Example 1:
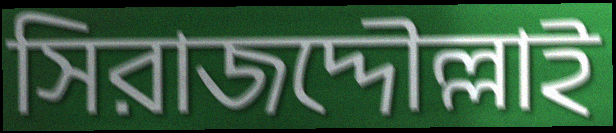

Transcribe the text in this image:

সিরাজদ্দৌল্লাই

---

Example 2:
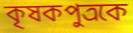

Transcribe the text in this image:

কৃষকপুত্রকে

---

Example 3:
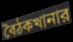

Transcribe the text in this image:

বৈঠকখানার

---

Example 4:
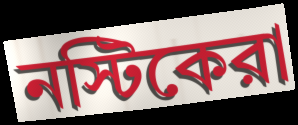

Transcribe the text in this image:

নস্টিকেরা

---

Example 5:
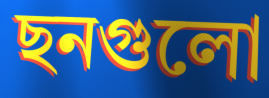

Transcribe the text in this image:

ছনগুলো